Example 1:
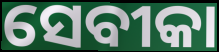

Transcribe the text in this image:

ସେବୀକା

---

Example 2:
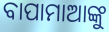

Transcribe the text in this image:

ବାପାମାଆଙ୍କୁ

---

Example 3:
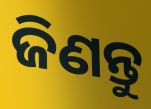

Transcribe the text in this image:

ଜିଣନ୍ତୁ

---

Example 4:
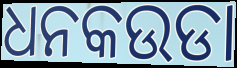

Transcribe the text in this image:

ଧନକଉଡା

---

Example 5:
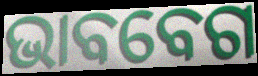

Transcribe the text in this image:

ଭାବବେଗ